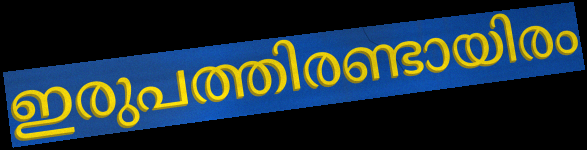
ഇരുപത്തിരണ്ടായിരം